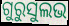
ଗୁରୁସୁଲଭ